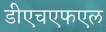
डीएचएफएल